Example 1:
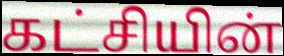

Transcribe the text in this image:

கட்சியின்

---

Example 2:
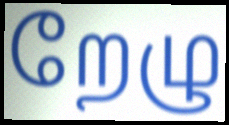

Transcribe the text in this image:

றேழு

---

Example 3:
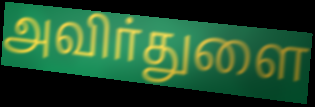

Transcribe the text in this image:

அவிர்துளை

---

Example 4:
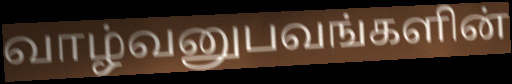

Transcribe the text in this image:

வாழ்வனுபவங்களின்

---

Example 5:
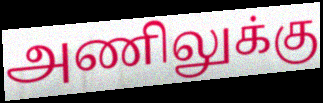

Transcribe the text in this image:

அணிலுக்கு